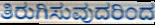
ತಿರುಗಿಸುವುದರಿಂದ